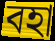
বহা